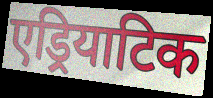
एड्रियाटिक